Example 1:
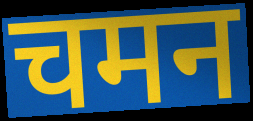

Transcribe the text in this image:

चमन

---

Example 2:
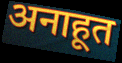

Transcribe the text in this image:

अनाहूत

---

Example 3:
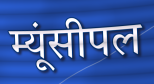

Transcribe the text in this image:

म्यूंसीपल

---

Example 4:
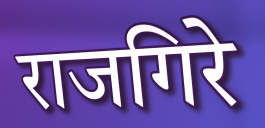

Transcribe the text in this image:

राजगिरे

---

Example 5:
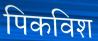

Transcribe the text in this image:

पिकविश